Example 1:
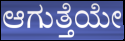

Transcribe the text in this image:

ಆಗುತ್ತೆಯೇ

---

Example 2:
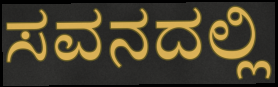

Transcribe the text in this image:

ಸವನದಲ್ಲಿ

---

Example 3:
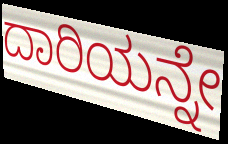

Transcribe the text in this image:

ದಾರಿಯನ್ನೇ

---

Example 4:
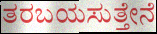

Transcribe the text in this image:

ತರಬಯಸುತ್ತೇನೆ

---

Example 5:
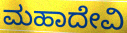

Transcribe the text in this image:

ಮಹಾದೇವಿ